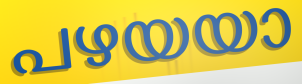
പഴയയാ